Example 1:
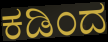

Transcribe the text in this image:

ಕಡಿಂದ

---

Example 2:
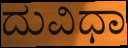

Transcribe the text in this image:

ದುವಿಧಾ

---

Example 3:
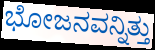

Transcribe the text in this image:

ಭೋಜನವನ್ನಿತ್ತು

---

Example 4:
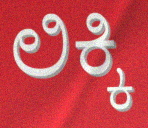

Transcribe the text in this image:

ಲಿಕ್ಕಿ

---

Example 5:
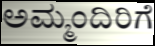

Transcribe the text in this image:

ಅಮ್ಮಂದಿರಿಗೆ